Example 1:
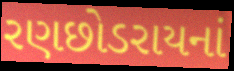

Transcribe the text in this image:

રણછોડરાયનાં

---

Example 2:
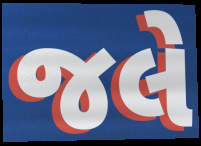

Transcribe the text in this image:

જલે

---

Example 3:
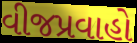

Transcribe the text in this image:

વીજપ્રવાહો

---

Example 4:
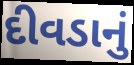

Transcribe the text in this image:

દીવડાનું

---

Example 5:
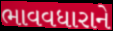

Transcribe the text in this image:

ભાવવધારાને